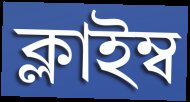
ক্লাইম্ব